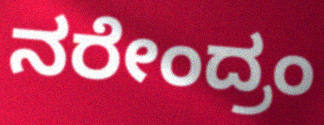
ನರೇಂದ್ರಂ